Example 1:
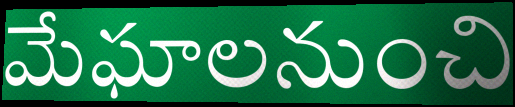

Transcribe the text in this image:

మేఘాలనుంచి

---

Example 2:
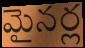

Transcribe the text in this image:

మైనర్ల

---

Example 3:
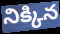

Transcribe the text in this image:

నిక్కిన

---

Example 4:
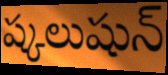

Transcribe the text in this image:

ష్కలుషున్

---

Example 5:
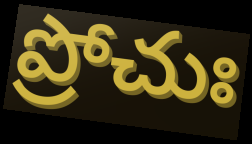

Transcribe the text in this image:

ప్రోచుః